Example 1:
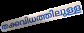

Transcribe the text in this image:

തക്കവിധത്തിലുള്ള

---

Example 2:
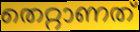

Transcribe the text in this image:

തെറ്റാണത്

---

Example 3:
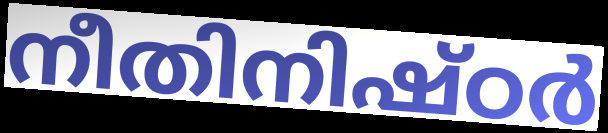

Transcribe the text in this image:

നീതിനിഷ്ഠർ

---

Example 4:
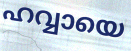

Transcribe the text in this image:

ഹവ്വായെ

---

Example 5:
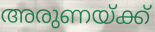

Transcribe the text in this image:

അരുണയ്ക്ക്